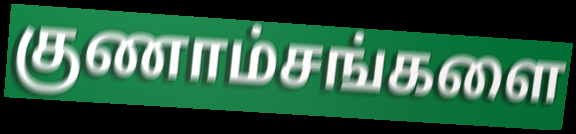
குணாம்சங்களை